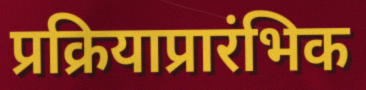
प्रक्रियाप्रारंभिक